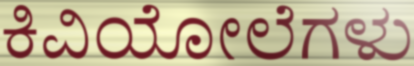
ಕಿವಿಯೋಲೆಗಳು